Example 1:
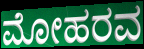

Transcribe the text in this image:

ಮೋಹರವ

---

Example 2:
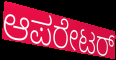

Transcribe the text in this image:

ಆಪರೇಟರ್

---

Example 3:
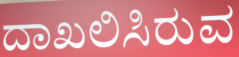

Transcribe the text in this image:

ದಾಖಲಿಸಿರುವ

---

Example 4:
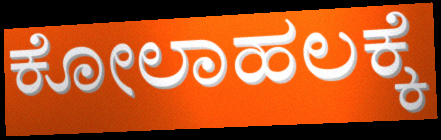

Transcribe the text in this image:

ಕೋಲಾಹಲಕ್ಕೆ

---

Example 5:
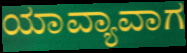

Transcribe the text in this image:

ಯಾವ್ಯಾವಾಗ